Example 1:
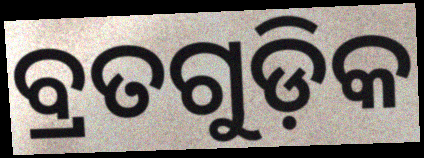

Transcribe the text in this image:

ବ୍ରତଗୁଡ଼ିକ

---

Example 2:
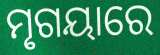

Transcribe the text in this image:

ମୃଗୟାରେ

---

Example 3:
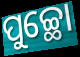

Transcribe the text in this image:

ପୁଚ୍ଛୋ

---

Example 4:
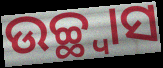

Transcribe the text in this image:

ଉଚ୍ଛ୍ୱାସ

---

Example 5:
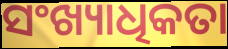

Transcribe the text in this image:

ସଂଖ୍ୟାଧିକତା